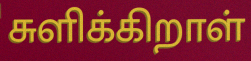
சுளிக்கிறாள்